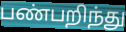
பண்பறிந்து